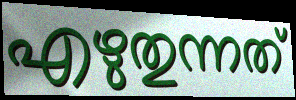
എഴുതുന്നത്